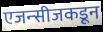
एजन्सीजकडून